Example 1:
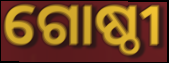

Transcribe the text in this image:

ଗୋଷ୍ଠୀ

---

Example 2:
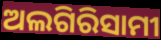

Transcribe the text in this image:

ଅଲଗିରିସାମୀ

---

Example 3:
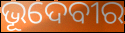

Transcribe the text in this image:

ଭୂଦେବୀର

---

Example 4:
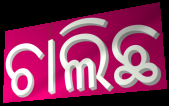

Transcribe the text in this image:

ଚାଲିଛ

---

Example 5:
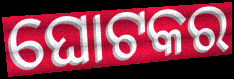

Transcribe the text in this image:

ଘୋଟକର